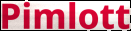
Pimlott